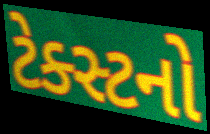
ટેક્સ્ટનો